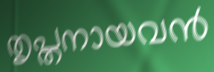
തൃപ്തനായവൻ